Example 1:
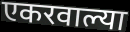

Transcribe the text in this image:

एकरवाल्या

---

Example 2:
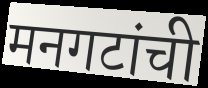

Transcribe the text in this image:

मनगटांची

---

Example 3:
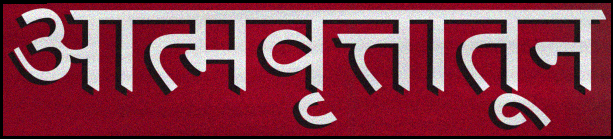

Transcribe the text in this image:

आत्मवृत्तातून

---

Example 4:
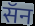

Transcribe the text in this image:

सॅन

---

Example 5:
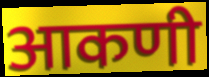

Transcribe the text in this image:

आकणी